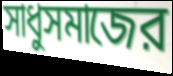
সাধুসমাজের